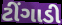
ટીંગાડી